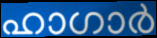
ഹാഗാർ